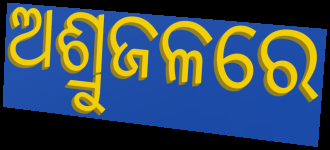
ଅଶ୍ରୁଜଳରେ